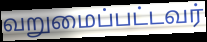
வறுமைப்பட்டவர்